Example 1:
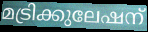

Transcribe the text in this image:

മട്രിക്കുലേഷന്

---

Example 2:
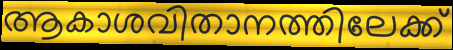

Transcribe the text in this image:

ആകാശവിതാനത്തിലേക്ക്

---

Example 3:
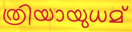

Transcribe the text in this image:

ത്രിയായുധമ്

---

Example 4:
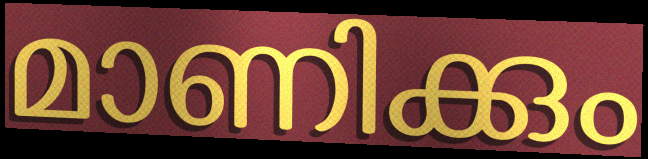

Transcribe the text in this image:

മാണിക്കും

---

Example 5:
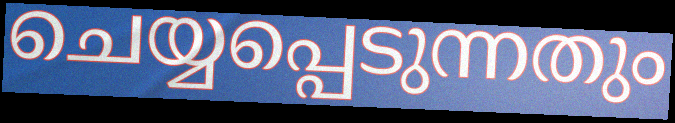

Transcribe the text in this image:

ചെയ്യപ്പെടുന്നതും